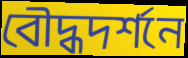
বৌদ্ধদর্শনে